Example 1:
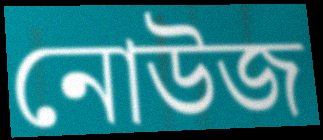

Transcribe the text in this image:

নোউজ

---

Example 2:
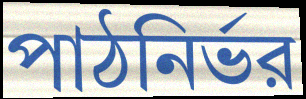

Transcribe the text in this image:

পাঠনির্ভর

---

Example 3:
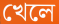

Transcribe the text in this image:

খেলে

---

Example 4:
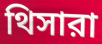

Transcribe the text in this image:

থিসারা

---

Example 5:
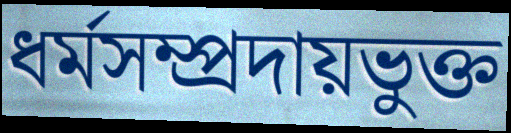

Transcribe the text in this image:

ধর্মসম্প্রদায়ভুক্ত